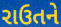
રાઉતને